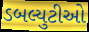
ડબલ્યુટીઓ